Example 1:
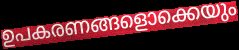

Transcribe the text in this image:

ഉപകരണങ്ങളൊക്കെയും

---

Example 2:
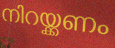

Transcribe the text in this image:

നിറയ്ക്കണം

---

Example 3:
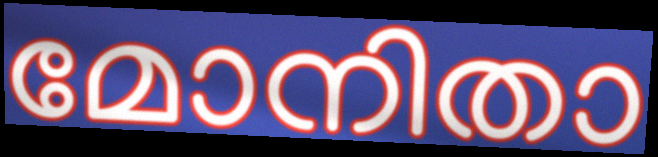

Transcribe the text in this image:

മോനിതാ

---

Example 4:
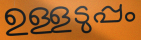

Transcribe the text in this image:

ഉള്ളടുപ്പം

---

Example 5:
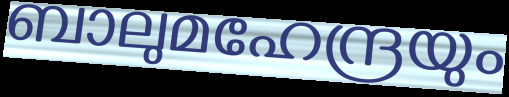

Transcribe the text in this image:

ബാലുമഹേന്ദ്രയും